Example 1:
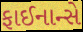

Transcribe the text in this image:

ફાઈનાન્સે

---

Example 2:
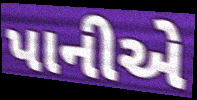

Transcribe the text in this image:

પાનીએ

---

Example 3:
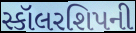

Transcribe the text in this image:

સ્કૉલરશિપની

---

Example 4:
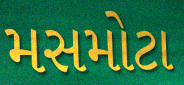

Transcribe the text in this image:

મસમોટા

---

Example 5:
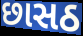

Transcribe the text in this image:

છાસઠ